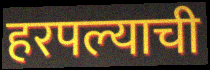
हरपल्याची